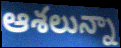
ఆశలున్నా